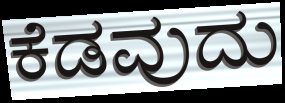
ಕೆಡವುದು